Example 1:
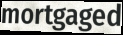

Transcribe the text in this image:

mortgaged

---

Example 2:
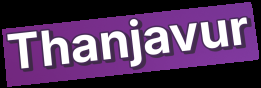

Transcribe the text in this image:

Thanjavur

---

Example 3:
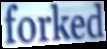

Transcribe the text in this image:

forked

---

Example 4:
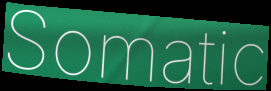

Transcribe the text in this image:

Somatic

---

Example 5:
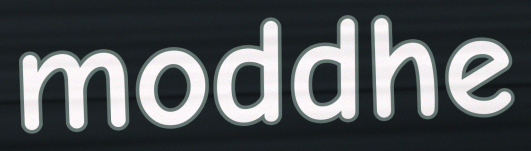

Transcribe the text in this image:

moddhe